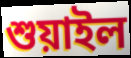
শুয়াইল